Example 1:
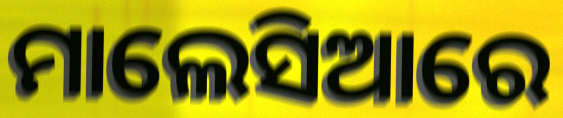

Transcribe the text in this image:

ମାଲେସିଆରେ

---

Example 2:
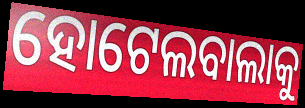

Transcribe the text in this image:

ହୋଟେଲବାଲାକୁ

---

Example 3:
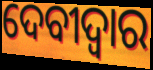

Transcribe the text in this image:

ଦେବୀଦ୍ବାର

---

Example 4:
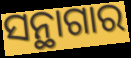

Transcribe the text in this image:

ସନ୍ଥାଗାର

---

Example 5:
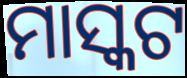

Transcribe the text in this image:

ମାସ୍କଟ